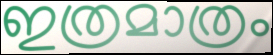
ഇത്രമാത്രം